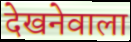
देखनेवाला